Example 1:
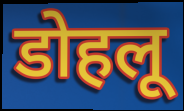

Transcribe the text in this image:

डोहलू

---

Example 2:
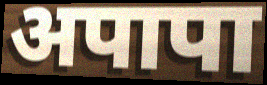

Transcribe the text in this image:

अपापा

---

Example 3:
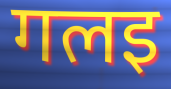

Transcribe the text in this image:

गलइ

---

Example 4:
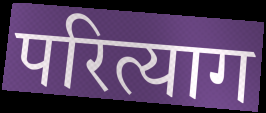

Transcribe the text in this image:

परित्याग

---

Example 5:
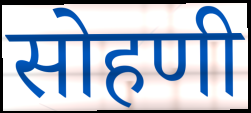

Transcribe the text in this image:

सोहणी